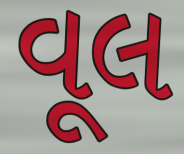
વૂલ